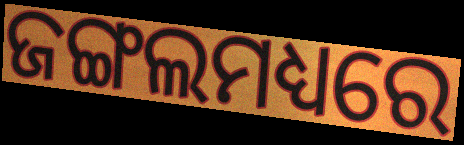
ଜଙ୍ଗଲମଧ୍ୟରେ